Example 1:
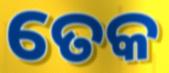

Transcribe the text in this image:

ତେକ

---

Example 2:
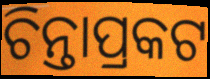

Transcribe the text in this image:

ଚିନ୍ତାପ୍ରକଟ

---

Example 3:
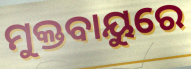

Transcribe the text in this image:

ମୁକ୍ତବାୟୁରେ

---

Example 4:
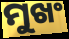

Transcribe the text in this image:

ମୁଖଂ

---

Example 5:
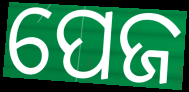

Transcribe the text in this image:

ପେଜ